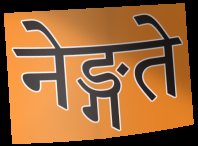
नेङ्गते